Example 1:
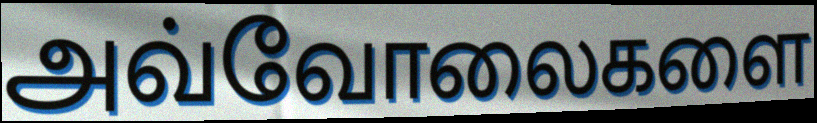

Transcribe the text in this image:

அவ்வோலைகளை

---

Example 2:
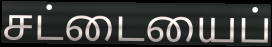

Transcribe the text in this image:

சட்டையைப்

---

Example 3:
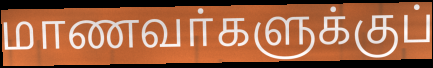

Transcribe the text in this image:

மாணவர்களுக்குப்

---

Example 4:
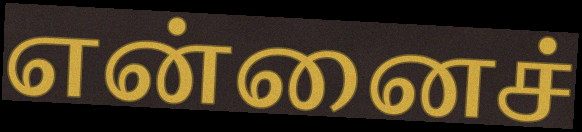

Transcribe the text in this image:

என்னைச்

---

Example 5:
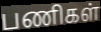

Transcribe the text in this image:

பணிகள்